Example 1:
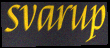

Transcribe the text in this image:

svarup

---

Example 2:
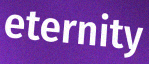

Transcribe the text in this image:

eternity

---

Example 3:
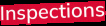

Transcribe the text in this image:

Inspections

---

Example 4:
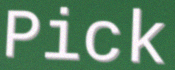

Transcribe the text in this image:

Pick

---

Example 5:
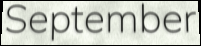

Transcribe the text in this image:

September